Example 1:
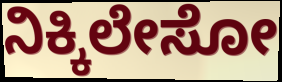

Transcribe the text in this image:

ನಿಕ್ಕಿಲೇಸೋ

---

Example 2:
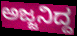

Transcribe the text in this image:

ಅಜ್ಜನಿದ್ದ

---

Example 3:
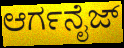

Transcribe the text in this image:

ಆರ್ಗನೈಜ್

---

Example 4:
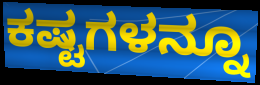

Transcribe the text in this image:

ಕಷ್ಟಗಳನ್ನೂ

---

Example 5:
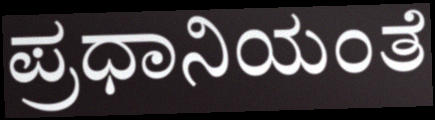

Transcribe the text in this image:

ಪ್ರಧಾನಿಯಂತೆ